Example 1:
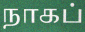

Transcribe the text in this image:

நாகப்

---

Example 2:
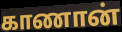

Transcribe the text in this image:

காணான்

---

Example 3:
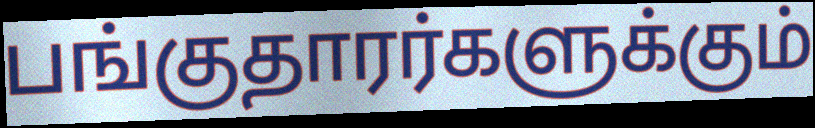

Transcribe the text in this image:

பங்குதாரர்களுக்கும்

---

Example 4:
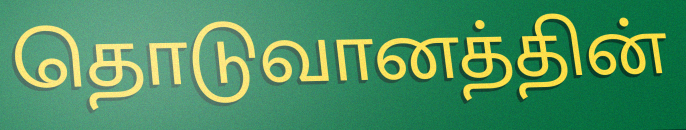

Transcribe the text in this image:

தொடுவானத்தின்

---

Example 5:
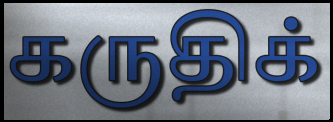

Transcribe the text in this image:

கருதிக்